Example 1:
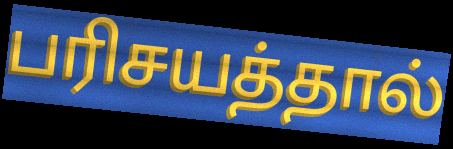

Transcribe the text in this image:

பரிசயத்தால்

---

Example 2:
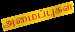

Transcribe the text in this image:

அமைப்புகள்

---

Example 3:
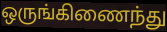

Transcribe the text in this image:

ஒருங்கிணைந்து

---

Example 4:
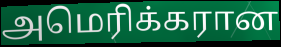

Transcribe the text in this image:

அமெரிக்கரான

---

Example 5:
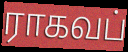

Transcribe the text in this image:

ராகவப்